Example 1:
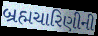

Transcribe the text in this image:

બ્રહ્મચારિણીની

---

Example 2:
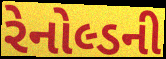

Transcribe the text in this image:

રેનોલ્ડની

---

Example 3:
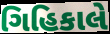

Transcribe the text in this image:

ગિહિકાલે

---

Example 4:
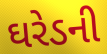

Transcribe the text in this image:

ઘરેડની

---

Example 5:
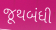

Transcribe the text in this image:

જૂથબંધી